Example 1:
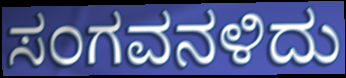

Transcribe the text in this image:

ಸಂಗವನಳಿದು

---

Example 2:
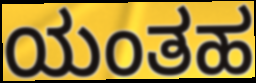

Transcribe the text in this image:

ಯಂತಹ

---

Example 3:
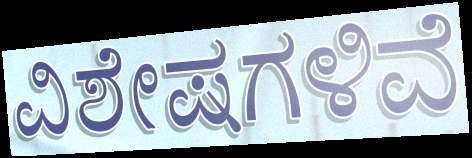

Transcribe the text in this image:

ವಿಶೇಷಗಳಿವೆ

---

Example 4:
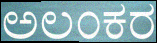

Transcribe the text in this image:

ಅಲಂಕರ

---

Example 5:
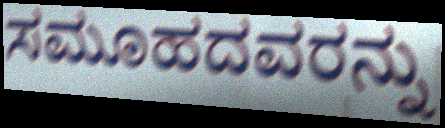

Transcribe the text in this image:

ಸಮೂಹದವರನ್ನು